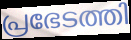
പ്രഭേടത്തി